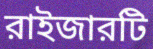
রাইজারটি